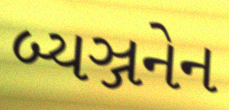
બ્યઞ્જનેન